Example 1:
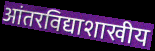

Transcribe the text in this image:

आंतरविद्याशाखीय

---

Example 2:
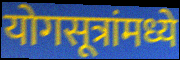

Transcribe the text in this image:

योगसूत्रांमध्ये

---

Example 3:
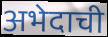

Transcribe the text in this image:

अभेदाची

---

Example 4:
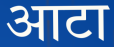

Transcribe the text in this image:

आटा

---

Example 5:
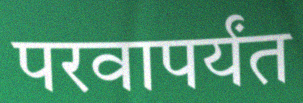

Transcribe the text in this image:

परवापर्यंत